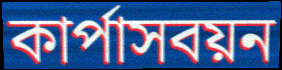
কার্পাসবয়ন